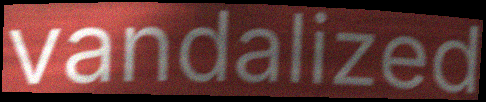
vandalized